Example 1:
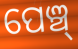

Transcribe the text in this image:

ପେଞ୍ଚ୍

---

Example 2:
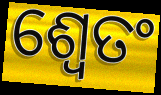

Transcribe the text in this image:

ଶ୍ଵେତଂ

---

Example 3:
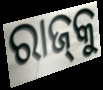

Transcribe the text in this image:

ରାଜ୍‍କୁ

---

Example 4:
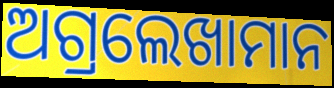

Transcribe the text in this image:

ଅଗ୍ରଲେଖାମାନ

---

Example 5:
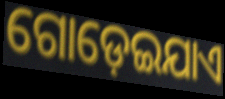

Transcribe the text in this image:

ଗୋଡ଼େଇଯାଏ